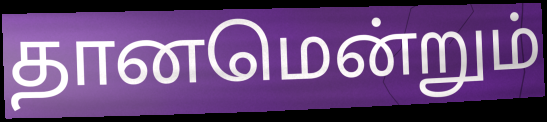
தானமென்றும்